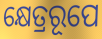
କ୍ଷେତ୍ରରୂପେ